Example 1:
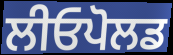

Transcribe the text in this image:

ਲੀਓਪੋਲਡ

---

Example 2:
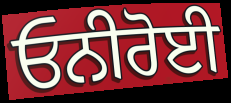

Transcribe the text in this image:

ਓਨੀਰੋਈ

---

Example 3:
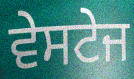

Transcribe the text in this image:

ਵੇਸਟੇਜ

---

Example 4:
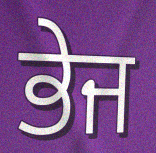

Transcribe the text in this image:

ਭੇਜ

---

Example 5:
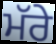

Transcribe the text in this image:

ਮੱਰੇ